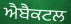
ਐਬੈਕਟਲ